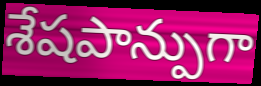
శేషపాన్పుగా